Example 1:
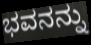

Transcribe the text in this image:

ಭವನನ್ನು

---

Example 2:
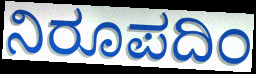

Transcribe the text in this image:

ನಿರೂಪದಿಂ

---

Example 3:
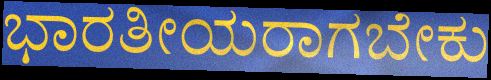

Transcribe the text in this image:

ಭಾರತೀಯರಾಗಬೇಕು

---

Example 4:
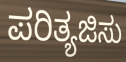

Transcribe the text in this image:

ಪರಿತ್ಯಜಿಸು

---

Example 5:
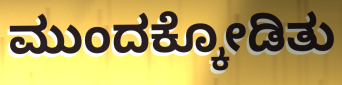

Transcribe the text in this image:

ಮುಂದಕ್ಕೋಡಿತು